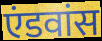
एंडवांस